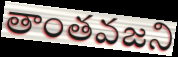
తాంతవజని